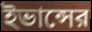
ইভান্সের